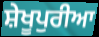
ਸ਼ੇਖੂਪੁਰੀਆ